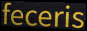
feceris